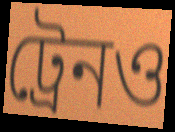
ট্রেনও